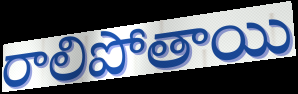
రాలిపోతాయి